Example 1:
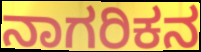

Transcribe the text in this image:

ನಾಗರಿಕನ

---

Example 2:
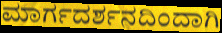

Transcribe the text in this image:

ಮಾರ್ಗದರ್ಶನದಿಂದಾಗಿ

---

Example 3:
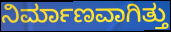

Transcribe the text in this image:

ನಿರ್ಮಾಣವಾಗಿತ್ತು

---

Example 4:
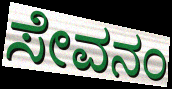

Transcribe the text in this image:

ಸೇವನಂ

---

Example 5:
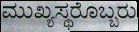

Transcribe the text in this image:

ಮುಖ್ಯಸ್ಥರೊಬ್ಬರು